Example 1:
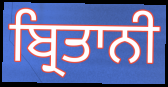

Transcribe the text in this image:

ਬ੍ਰਿਤਾਨੀ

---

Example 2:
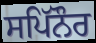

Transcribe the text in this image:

ਸਪਿੱਨੌਰ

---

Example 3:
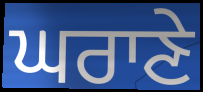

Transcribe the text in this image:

ਘਰਾਣੇ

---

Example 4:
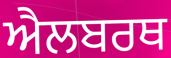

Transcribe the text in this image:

ਐਲਬਰਥ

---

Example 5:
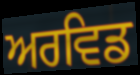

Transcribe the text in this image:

ਅਰਵਿਡ